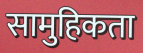
सामुहिकता